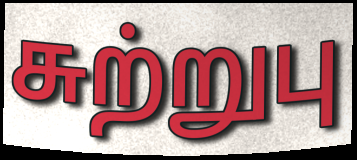
சுற்றுபு